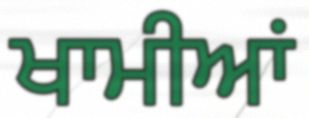
ਖਾਮੀਆਂ